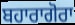
ਬਹਾਰਾਗੋਰਾ